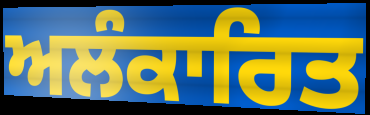
ਅਲੰਕਾਰਿਤ